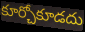
కూర్చోకూడదు